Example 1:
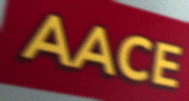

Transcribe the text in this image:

AACE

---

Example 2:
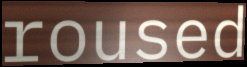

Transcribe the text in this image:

roused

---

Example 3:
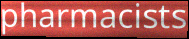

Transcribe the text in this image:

pharmacists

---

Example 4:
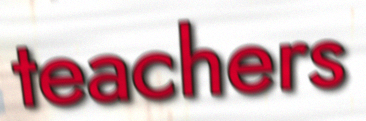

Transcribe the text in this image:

teachers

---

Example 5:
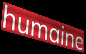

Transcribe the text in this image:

humaine